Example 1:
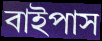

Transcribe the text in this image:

বাইপাস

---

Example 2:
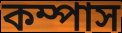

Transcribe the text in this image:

কম্পাস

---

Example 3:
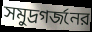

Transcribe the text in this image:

সমুদ্রগর্জনের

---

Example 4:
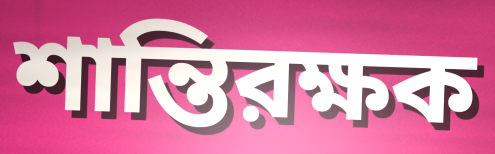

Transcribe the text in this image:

শান্তিরক্ষক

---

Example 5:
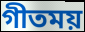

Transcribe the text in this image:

গীতময়